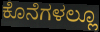
ಕೊನೆಗಳಲ್ಲೂ